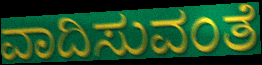
ವಾದಿಸುವಂತೆ